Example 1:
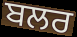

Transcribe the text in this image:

ਬਲਰ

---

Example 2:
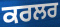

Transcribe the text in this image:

ਕਰਲਰ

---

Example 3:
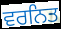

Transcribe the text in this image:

ਵਰਨਿਤ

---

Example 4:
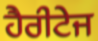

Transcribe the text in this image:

ਹੈਰੀਟੇਜ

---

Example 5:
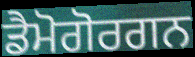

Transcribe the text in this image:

ਡੈਮੋਗੋਰਗਨ